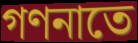
গণনাতে